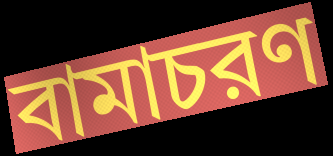
বামাচরণ